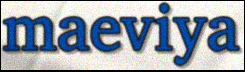
maeviya